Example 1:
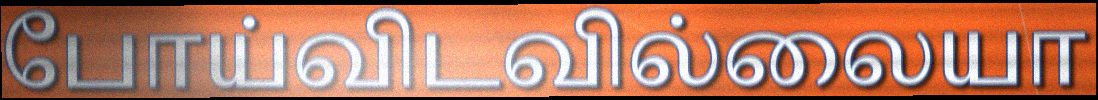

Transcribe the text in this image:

போய்விடவில்லையா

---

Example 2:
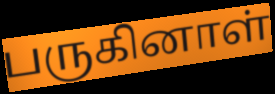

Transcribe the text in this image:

பருகினாள்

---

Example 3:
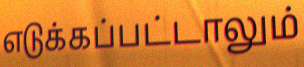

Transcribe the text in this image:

எடுக்கப்பட்டாலும்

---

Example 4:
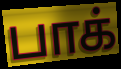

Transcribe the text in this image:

பாக்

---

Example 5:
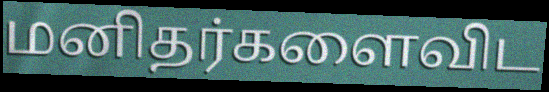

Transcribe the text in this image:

மனிதர்களைவிட